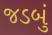
જડબું